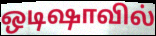
ஒடிஷாவில்